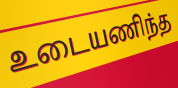
உடையணிந்த